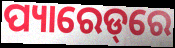
ପ୍ୟାରେଡ୍‌ରେ